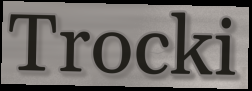
Trocki